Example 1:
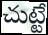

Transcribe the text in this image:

చుట్టే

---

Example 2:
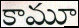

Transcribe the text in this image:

కామూ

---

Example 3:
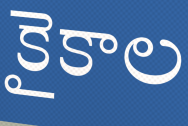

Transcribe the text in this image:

కైకాల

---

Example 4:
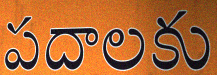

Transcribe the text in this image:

పదాలకు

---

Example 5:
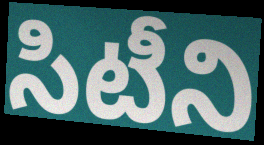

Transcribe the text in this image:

సిటీని